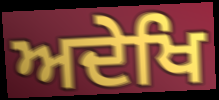
ਅਦੇਖਿ